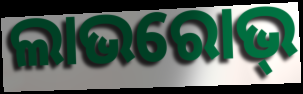
ଲାଭରୋଭ୍